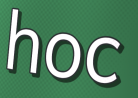
hoc